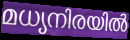
മധ്യനിരയിൽ